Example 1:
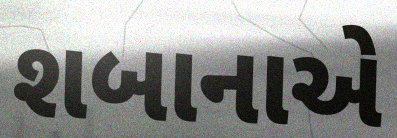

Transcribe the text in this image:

શબાનાએ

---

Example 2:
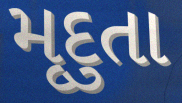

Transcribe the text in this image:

મૃદુતા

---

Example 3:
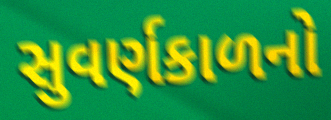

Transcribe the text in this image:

સુવર્ણકાળનો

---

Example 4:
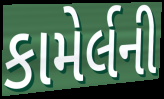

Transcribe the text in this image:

કામેર્લની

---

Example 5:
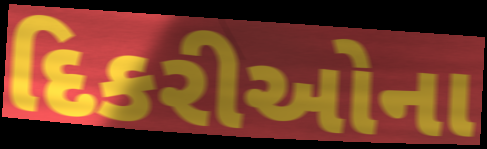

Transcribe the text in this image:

દિકરીઓના